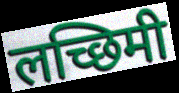
लच्छिमी